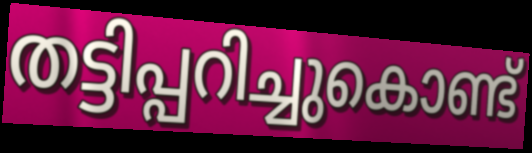
തട്ടിപ്പറിച്ചുകൊണ്ട്